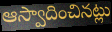
ఆస్వాదించినట్లు